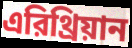
এরিথ্রিয়ান